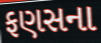
ફણસના